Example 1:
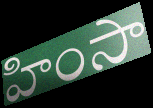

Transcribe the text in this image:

హింసా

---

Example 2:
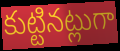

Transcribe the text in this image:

కుట్టినట్లుగా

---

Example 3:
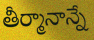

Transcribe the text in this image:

తీర్మానాన్నే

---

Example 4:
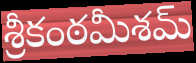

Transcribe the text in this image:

శ్రీకంఠమీశమ్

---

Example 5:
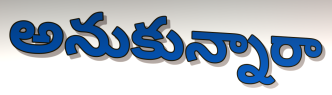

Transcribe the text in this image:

అనుకున్నారా